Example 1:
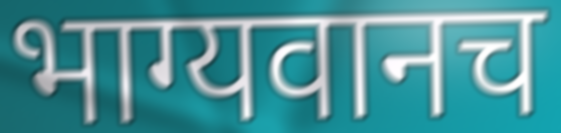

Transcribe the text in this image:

भाग्यवानच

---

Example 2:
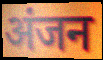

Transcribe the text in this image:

अंजन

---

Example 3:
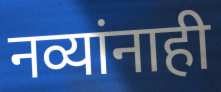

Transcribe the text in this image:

नव्यांनाही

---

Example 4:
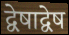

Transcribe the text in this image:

द्वेषाद्वेष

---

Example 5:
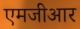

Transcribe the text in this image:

एमजीआर